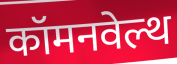
कॉमनवेल्थ